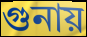
গুনায়